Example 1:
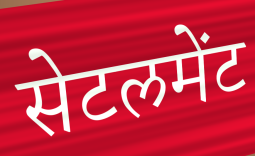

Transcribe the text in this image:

सेटलमेंट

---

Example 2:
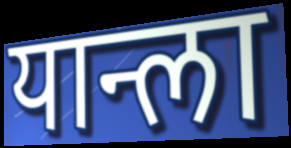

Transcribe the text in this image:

यान्ला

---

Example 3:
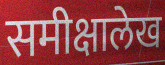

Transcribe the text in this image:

समीक्षालेख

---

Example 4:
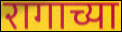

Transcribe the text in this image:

रागाच्या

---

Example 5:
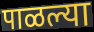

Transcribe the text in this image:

पाळल्या